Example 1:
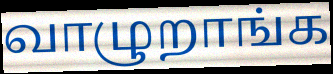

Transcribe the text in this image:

வாழுறாங்க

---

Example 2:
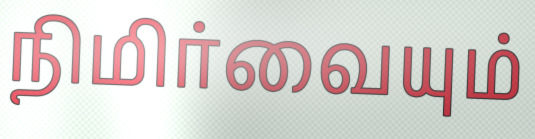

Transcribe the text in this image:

நிமிர்வையும்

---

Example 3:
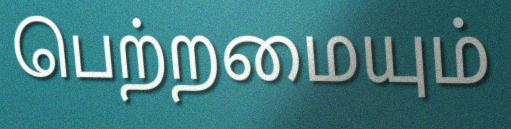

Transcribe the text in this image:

பெற்றமையும்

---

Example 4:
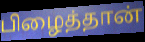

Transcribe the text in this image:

பிழைத்தான்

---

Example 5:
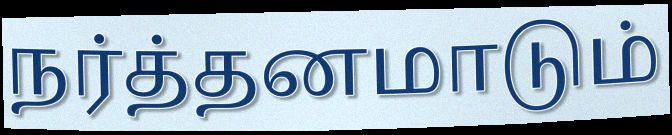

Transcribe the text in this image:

நர்த்தனமாடும்